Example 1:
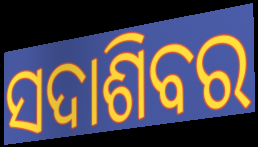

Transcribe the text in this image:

ସଦାଶିବର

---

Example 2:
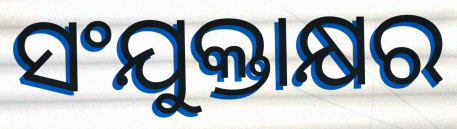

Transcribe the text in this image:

ସଂଯୁକ୍ତାକ୍ଷର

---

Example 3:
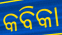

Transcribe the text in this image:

କବିକା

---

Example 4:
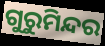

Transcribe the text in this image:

ଗୁରୁମିନ୍ଦର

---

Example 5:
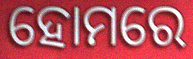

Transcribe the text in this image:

ହୋମରେ